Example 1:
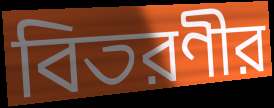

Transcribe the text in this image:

বিতরণীর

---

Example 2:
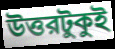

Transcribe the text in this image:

উত্তরটুকুই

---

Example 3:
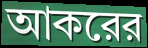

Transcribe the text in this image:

আকরের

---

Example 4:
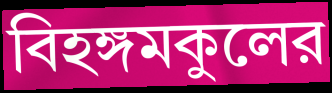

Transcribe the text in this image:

বিহঙ্গমকুলের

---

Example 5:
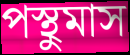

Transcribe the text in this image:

পস্থুমাস